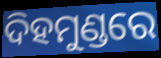
ଦିହମୁଣ୍ଡରେ